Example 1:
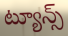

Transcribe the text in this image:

ట్యూన్స్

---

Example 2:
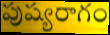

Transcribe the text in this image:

పుష్యరాగం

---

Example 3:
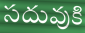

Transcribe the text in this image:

సదువుకి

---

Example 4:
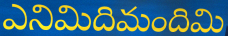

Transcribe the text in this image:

ఎనిమిదిమందిమి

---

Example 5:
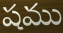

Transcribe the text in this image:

షము